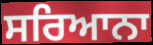
ਸਰਿਆਨਾ